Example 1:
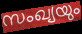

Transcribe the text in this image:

സംഖ്യയും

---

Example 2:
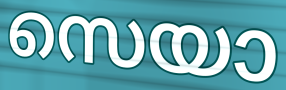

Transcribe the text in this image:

സെയാ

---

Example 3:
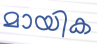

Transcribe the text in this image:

മായിക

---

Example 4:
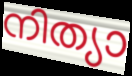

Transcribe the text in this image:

നിത്യാ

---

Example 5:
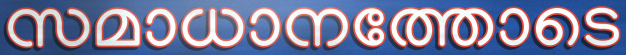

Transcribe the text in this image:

സമാധാനത്തോടെ